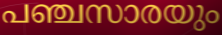
പഞ്ചസാരയും